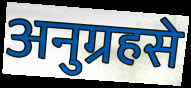
अनुग्रहसे